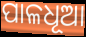
ପାଳଧୂଆ